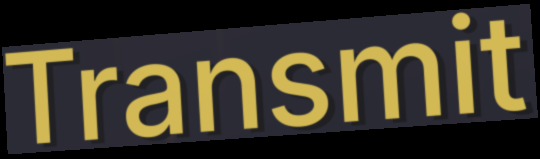
Transmit